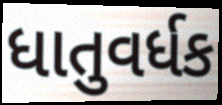
ધાતુવર્ધક